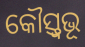
କୌସ୍ତ୍ୱଭୂ